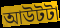
আউটটা